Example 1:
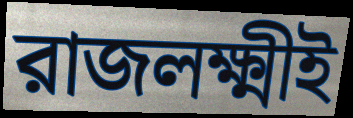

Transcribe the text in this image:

রাজলক্ষ্মীই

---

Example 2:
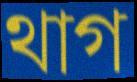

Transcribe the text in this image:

থাগ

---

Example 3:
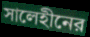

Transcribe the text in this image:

সালেহীনের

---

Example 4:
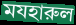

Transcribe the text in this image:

মযহারুল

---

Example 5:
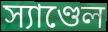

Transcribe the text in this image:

স্যাণ্ডেল